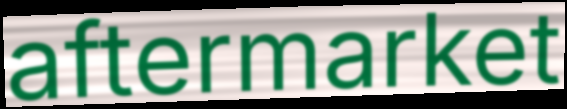
aftermarket